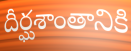
దీర్ఘశాంతానికి